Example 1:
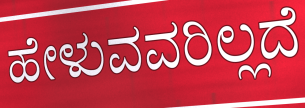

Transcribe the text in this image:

ಹೇಳುವವರಿಲ್ಲದೆ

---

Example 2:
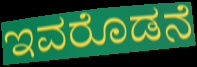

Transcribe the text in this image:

ಇವರೊಡನೆ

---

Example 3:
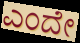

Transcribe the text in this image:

ಎಂದೇ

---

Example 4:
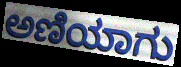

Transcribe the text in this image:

ಅಣಿಯಾಗು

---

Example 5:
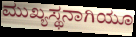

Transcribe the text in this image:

ಮುಖ್ಯಸ್ಥನಾಗಿಯೂ